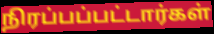
நிரப்பப்பட்டார்கள்